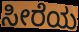
ಸೀರೆಯ